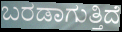
ಬರಡಾಗುತ್ತಿದೆ